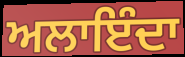
ਅਲਾਇੰਦਾ